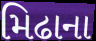
મિઢાના